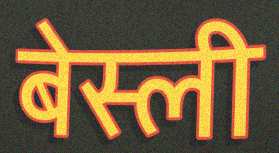
बेस्ली